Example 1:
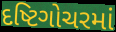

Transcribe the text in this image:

દષ્ટિગોચરમાં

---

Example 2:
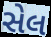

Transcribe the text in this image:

સેલ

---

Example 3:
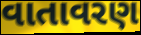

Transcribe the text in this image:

વાતાવરણ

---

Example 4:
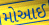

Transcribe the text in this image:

મોઆઈ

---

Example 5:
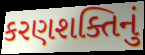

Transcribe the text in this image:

કરણશક્તિનું